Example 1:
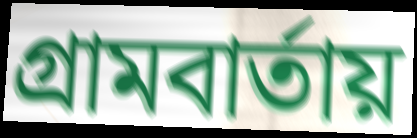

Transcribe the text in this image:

গ্রামবার্তায়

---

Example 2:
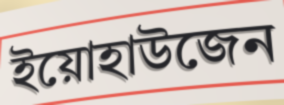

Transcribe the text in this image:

ইয়োহাউজেন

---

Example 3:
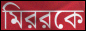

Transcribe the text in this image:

মিররকে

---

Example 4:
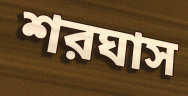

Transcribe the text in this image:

শরঘাস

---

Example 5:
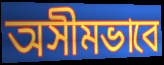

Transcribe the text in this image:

অসীমভাবে